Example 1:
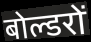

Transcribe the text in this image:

बोल्डरों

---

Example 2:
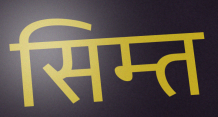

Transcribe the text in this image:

सिम्त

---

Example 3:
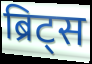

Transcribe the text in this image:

ब्रिट्स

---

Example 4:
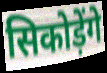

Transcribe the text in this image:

सिकोड़ेंगे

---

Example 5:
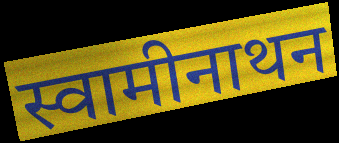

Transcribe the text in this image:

स्वामीनाथन